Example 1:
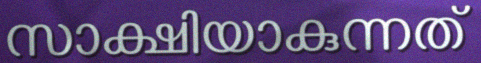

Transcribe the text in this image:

സാക്ഷിയാകുന്നത്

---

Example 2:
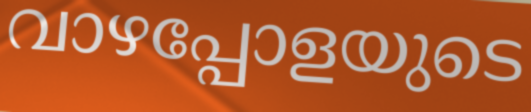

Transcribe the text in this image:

വാഴപ്പോളയുടെ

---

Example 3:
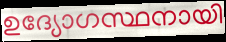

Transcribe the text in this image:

ഉദ്യോഗസ്ഥനായി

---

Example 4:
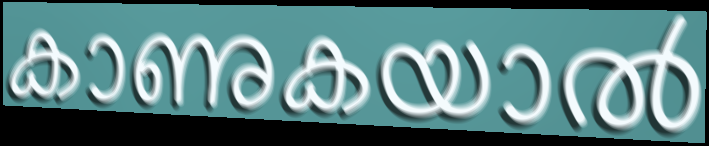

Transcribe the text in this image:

കാണുകയാൽ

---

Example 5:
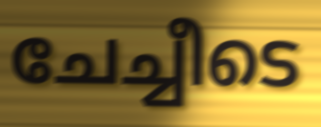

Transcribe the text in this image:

ചേച്ചീടെ